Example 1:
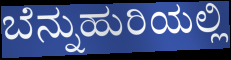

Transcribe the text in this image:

ಬೆನ್ನುಹುರಿಯಲ್ಲಿ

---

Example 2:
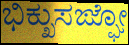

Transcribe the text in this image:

ಭಿಕ್ಖುಸಙ್ಘೋ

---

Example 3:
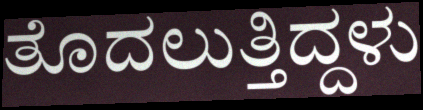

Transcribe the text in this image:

ತೊದಲುತ್ತಿದ್ದಳು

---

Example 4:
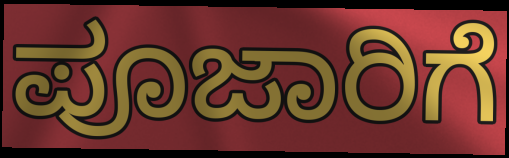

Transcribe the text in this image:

ಪೂಜಾರಿಗೆ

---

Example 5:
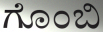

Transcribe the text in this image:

ಗೊಂಬಿ